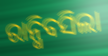
ରାନ୍ଧିବସିଲା